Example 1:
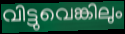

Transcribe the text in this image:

വിട്ടുവെങ്കിലും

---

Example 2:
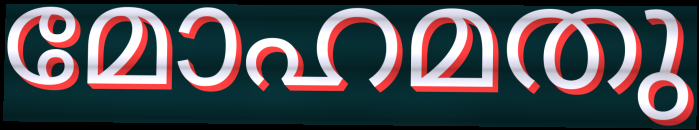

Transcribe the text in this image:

മോഹമതു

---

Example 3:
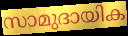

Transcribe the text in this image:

സാമുദായിക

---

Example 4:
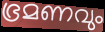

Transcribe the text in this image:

ഭ്രമണവും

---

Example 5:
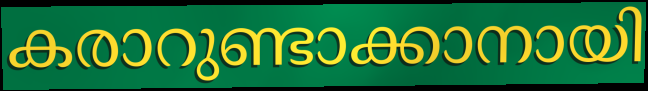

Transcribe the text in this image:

കരാറുണ്ടാക്കാനായി